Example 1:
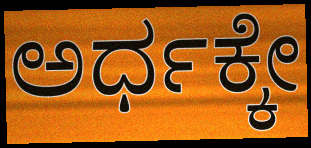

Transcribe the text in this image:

ಅರ್ಧಕ್ಕೇ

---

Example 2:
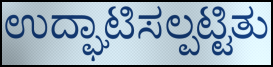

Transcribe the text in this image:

ಉದ್ಘಾಟಿಸಲ್ಪಟ್ಟಿತು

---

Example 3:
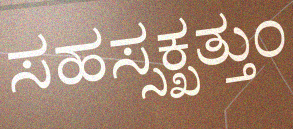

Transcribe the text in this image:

ಸಹಸ್ಸಕ್ಖತ್ತುಂ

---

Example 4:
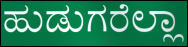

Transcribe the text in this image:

ಹುಡುಗರೆಲ್ಲಾ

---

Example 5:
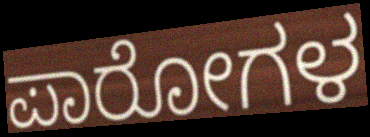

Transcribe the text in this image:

ಪಾರೋಗಳ